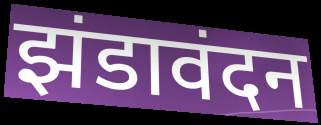
झंडावंदन